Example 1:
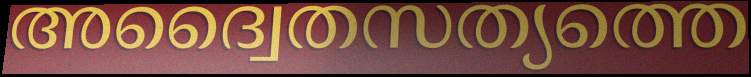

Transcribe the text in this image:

അദ്വൈതസത്യത്തെ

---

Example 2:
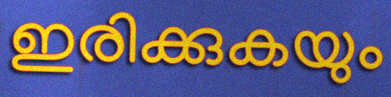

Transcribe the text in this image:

ഇരിക്കുകയും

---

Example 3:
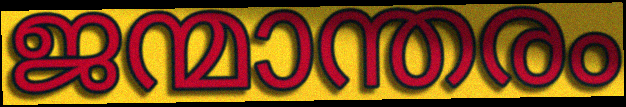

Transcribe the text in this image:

ജന്മാന്തരം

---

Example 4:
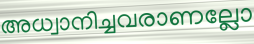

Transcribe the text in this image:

അധ്വാനിച്ചവരാണല്ലോ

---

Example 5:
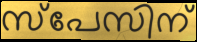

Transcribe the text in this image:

സ്പേസിന്